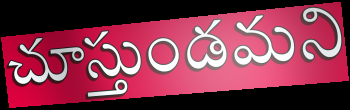
చూస్తుండమని